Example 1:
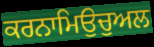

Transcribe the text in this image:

ਕਰਨਾਮਿਉਚੁਅਲ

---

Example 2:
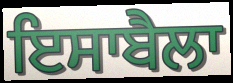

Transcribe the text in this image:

ਇਸਾਬੈਲਾ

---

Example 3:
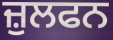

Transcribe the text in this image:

ਜ਼ੁਲਫਨ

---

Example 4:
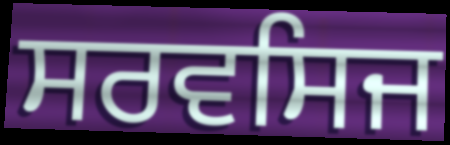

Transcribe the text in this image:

ਸਰਵਸਿਜ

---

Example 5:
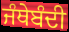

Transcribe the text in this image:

ਜੰਥੇਬੰਦੀ